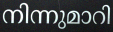
നിന്നുമാറി